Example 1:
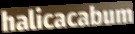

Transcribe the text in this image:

halicacabum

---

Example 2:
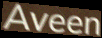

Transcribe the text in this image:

Aveen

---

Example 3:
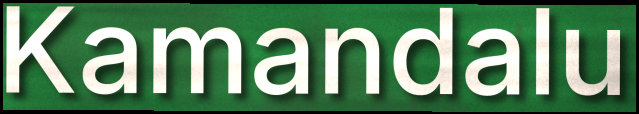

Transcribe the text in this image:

Kamandalu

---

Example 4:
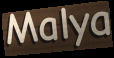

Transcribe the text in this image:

Malya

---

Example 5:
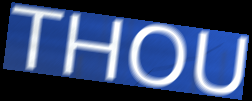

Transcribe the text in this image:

THOU